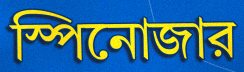
স্পিনোজার